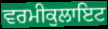
ਵਰਮੀਕੁਲਾਇਟ